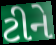
ટીને